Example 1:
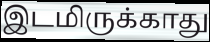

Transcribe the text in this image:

இடமிருக்காது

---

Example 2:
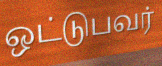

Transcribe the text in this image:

ஒட்டுபவர்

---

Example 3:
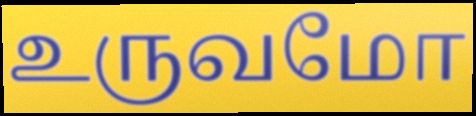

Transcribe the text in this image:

உருவமோ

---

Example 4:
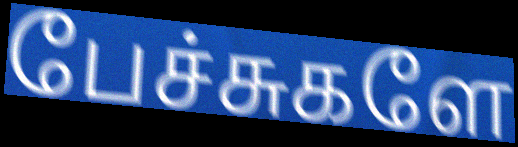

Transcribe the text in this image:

பேச்சுகளே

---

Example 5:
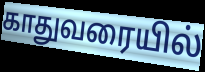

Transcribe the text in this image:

காதுவரையில்